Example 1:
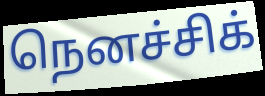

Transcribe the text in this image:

நெனச்சிக்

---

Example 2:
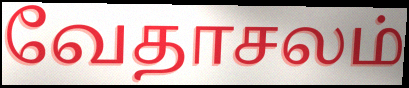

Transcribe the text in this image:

வேதாசலம்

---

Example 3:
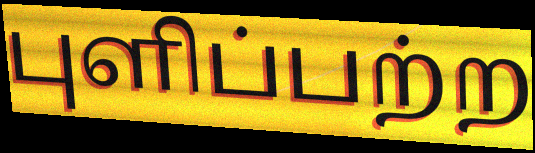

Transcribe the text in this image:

புளிப்பற்ற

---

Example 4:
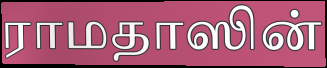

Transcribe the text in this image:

ராமதாஸின்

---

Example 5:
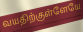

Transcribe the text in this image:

வயதிற்குள்ளேயே